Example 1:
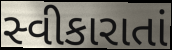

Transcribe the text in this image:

સ્વીકારાતાં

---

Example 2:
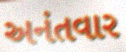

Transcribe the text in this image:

અનંતવાર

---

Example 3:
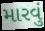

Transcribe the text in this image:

મારવું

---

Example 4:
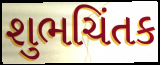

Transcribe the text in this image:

શુભચિંતક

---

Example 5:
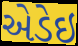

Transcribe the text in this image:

એડેઇ